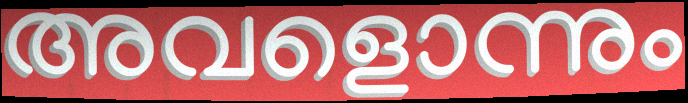
അവളൊന്നും